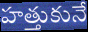
హత్తుకునే